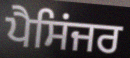
ਪੈਸਿਂਜਰ